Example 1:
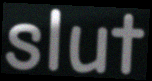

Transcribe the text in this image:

slut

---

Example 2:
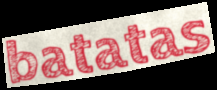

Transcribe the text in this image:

batatas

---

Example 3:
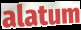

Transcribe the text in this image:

alatum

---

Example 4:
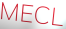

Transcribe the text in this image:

MECL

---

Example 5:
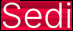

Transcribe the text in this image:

Sedi